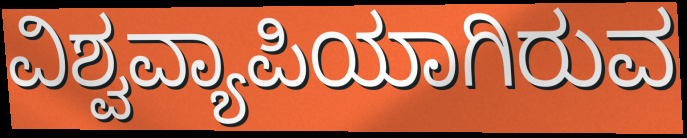
ವಿಶ್ವವ್ಯಾಪಿಯಾಗಿರುವ